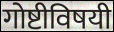
गोष्टीविषयी